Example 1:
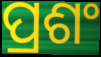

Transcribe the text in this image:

ପ୍ରଶଂ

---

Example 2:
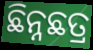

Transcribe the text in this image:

ଛିନ୍ନଛତ୍ର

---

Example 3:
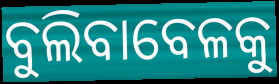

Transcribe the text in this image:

ବୁଲିବାବେଳକୁ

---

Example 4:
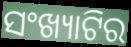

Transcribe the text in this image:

ସଂଖ୍ୟାଟିର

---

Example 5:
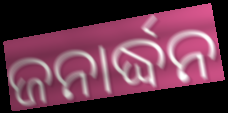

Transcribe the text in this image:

ଜନାର୍ଦ୍ଧନ